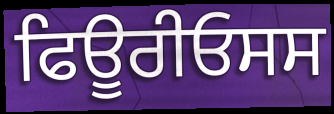
ਫਿਊਰੀਓਸਸ